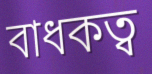
বাধকত্ব